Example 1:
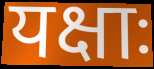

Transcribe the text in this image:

यक्षाः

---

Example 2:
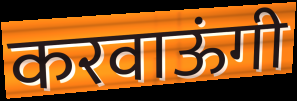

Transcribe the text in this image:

करवाऊंगी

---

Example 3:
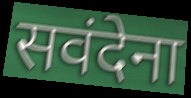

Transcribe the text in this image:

सवंदेना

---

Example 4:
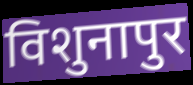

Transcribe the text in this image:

विशुनापुर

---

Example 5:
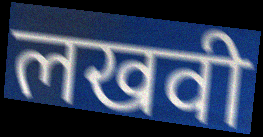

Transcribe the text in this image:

लखवी